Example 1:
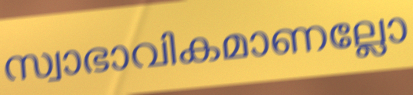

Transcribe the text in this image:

സ്വാഭാവികമാണല്ലോ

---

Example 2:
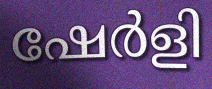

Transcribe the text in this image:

ഷേർളി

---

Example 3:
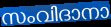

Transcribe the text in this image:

സംവിദാനാ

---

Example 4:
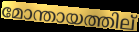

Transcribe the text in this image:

മോന്തായത്തില്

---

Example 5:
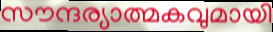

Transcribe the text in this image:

സൗന്ദര്യാത്മകവുമായി